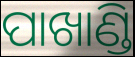
ପାଖାଣ୍ଡି